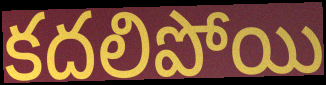
కదలిపోయి